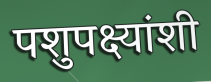
पशुपक्ष्यांशी